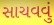
સાચવવું